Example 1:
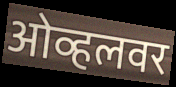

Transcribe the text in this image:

ओव्हलवर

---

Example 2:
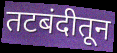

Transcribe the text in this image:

तटबंदीतून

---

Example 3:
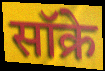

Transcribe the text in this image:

सॉक्रे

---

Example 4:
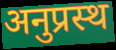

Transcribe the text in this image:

अनुप्रस्थ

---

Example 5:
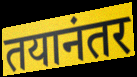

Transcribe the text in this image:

तयानंतर